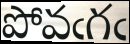
పోవఁగఁ